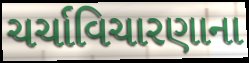
ચર્ચાવિચારણાના